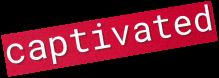
captivated